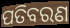
ପତିବରଣ